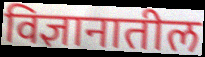
विज्ञानातील